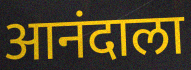
आनंदाला